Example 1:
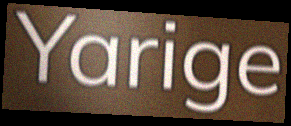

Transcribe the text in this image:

Yarige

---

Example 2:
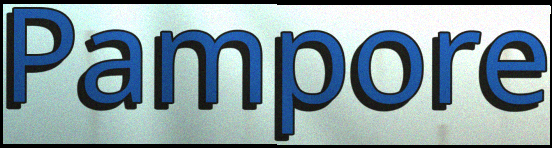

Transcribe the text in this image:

Pampore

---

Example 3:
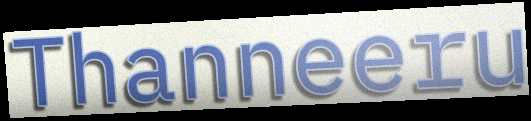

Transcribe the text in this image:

Thanneeru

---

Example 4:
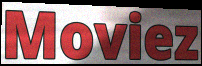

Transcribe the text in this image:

Moviez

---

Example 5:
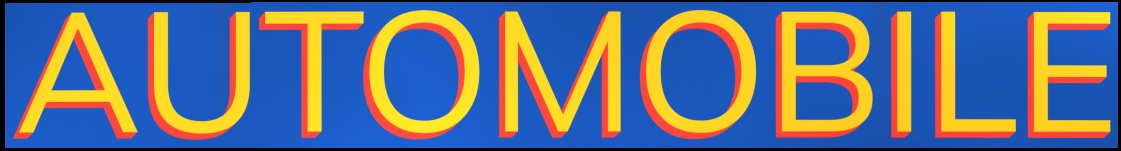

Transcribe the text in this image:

AUTOMOBILE